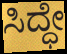
ಸಿದ್ಧೇ